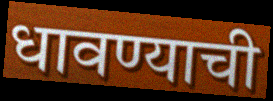
धावण्याची